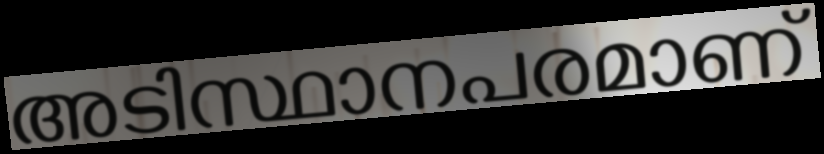
അടിസ്ഥാനപരമാണ്